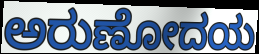
ಅರುಣೋದಯ